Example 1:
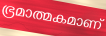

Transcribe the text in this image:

ഭ്രമാത്മകമാണ്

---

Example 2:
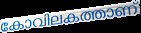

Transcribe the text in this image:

കോവിലകത്താണ്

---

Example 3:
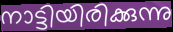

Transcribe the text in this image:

നാട്ടിയിരിക്കുന്നു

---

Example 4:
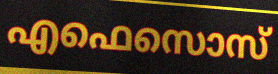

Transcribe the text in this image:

എഫെസൊസ്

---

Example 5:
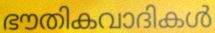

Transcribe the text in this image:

ഭൗതികവാദികൾ